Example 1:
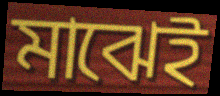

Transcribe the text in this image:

মাঝেই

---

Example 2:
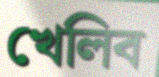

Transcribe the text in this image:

খেলিব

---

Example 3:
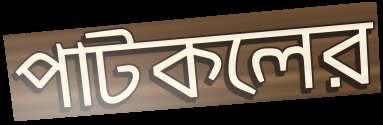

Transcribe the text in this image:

পাটকলের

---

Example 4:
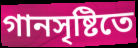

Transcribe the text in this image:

গানসৃষ্টিতে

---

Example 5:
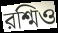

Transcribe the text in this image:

রশ্মিও